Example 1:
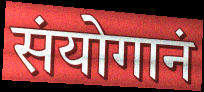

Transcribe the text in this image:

संयोगानं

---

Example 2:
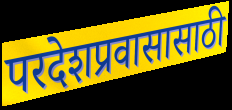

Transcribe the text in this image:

परदेशप्रवासासाठी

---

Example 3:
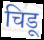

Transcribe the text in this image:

चिडू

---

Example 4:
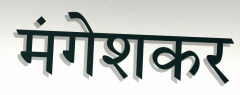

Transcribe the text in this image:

मंगेशकर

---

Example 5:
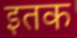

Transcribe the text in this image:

इतक